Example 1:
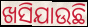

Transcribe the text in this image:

ଖସିଯାଉଛି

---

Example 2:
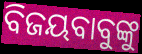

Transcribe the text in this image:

ବିଜୟବାବୁଙ୍କୁ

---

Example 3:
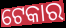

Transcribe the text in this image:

ଟେକାର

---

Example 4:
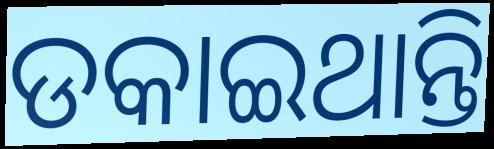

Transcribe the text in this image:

ଡକାଇଥାନ୍ତି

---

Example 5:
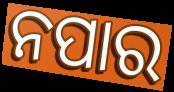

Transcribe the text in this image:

ନପାର